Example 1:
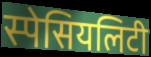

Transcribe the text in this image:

स्पेसियलिटी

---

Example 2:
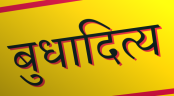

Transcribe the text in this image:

बुधादित्य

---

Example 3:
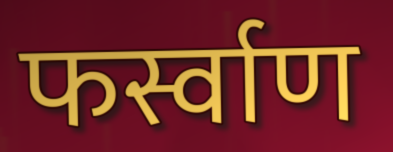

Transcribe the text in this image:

फर्स्वाण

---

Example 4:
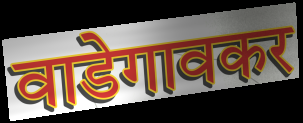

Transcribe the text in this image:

वाडेगावकर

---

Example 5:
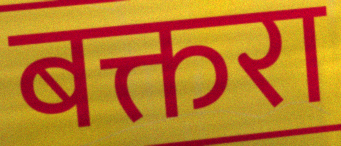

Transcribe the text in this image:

बक्तरा